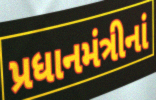
પ્રધાનમંત્રીનાં